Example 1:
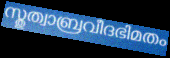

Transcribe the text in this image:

സ്തുത്വാബ്രവീദഭിമതം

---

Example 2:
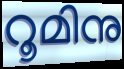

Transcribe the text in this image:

റൂമിനു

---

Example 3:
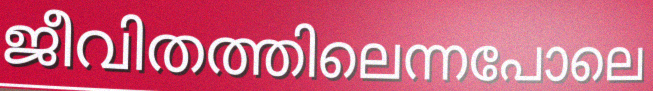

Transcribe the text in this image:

ജീവിതത്തിലെന്നപോലെ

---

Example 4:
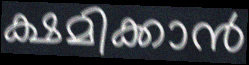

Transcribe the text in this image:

ക്ഷമിക്കാൻ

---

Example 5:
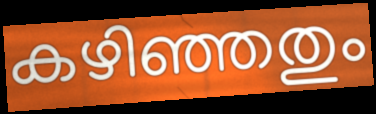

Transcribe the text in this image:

കഴിഞ്ഞതും